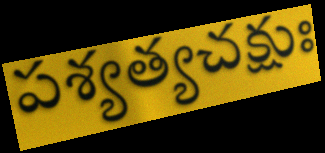
పశ్యత్యచక్షుః